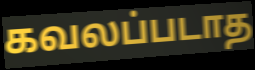
கவலப்படாத